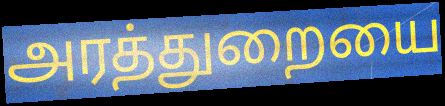
அரத்துறையை